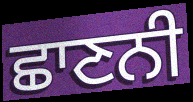
ਛਾਣਨੀ